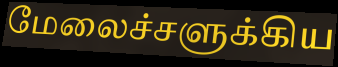
மேலைச்சளுக்கிய